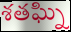
శతఘ్ని